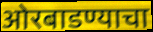
ओरबाडण्याचा